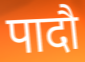
पादौ